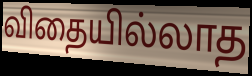
விதையில்லாத